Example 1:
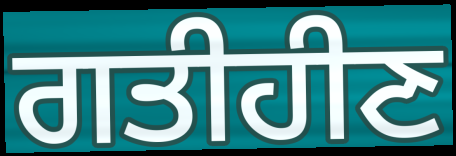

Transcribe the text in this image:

ਗਤੀਹੀਣ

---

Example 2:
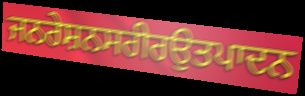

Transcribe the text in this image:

ਜਨਰੇਸ਼ਨਸਰੀਰਉਤਪਾਦਨ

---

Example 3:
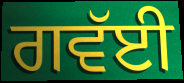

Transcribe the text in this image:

ਗਵੱਈ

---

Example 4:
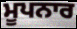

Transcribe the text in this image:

ਮੂਪਨਾਰ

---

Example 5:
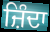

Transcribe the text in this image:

ਜ਼ਿੰਦਾ